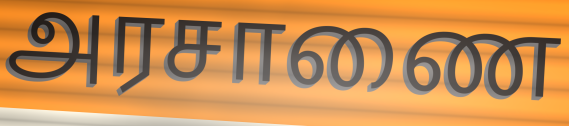
அரசாணை